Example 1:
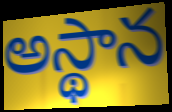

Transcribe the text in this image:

అస్థాన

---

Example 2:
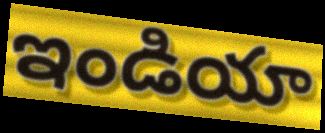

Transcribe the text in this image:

ఇండియా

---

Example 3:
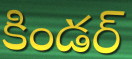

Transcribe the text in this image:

కిండర్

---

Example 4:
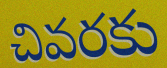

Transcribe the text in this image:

చివరకు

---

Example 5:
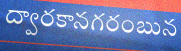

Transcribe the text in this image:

ద్వారకానగరంబున